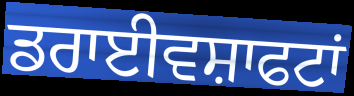
ਡਰਾਈਵਸ਼ਾਫਟਾਂ